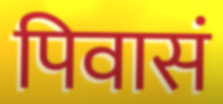
पिवासं